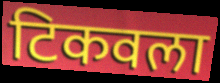
टिकवला